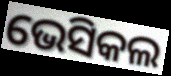
ଭେସିକଲ